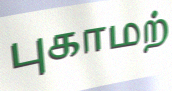
புகாமற்